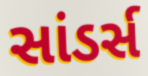
સાંડર્સ